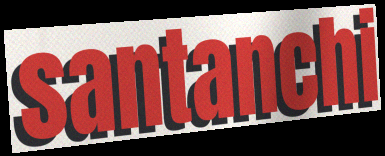
santanchi